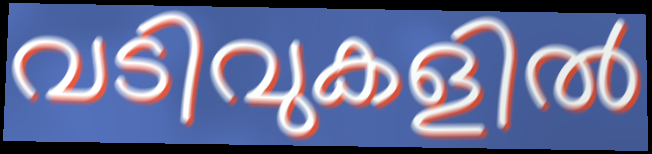
വടിവുകളിൽ